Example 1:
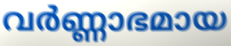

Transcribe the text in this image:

വർണ്ണാഭമായ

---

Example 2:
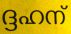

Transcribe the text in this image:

ദ്ദഹന്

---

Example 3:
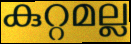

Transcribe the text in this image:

കുറ്റമല്ല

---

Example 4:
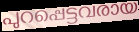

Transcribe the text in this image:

പുറപ്പെട്ടവരായ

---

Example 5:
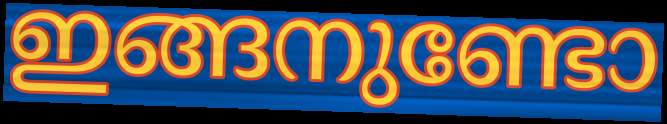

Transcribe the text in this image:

ഇങ്ങനുണ്ടോ